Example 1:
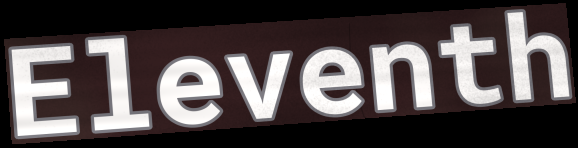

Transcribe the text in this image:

Eleventh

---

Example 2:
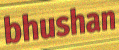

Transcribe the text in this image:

bhushan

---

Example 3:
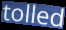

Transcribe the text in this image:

tolled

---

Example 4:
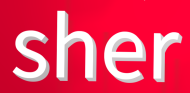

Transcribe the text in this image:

sher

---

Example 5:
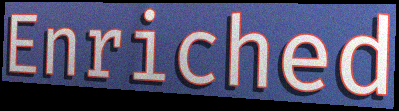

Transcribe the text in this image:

Enriched